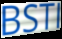
BSTI